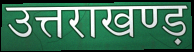
उत्तराखण्ड़